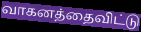
வாகனத்தைவிட்டு